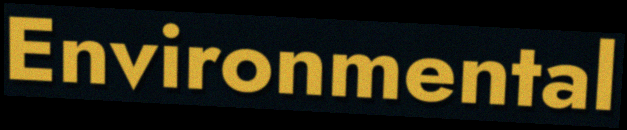
Environmental